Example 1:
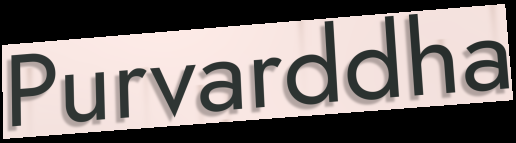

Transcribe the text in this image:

Purvarddha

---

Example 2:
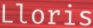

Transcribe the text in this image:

Lloris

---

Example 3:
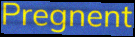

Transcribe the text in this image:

Pregnent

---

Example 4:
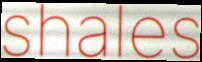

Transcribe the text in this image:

shales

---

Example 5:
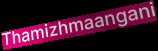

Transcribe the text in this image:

Thamizhmaangani